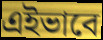
এইভাবে